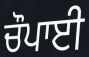
ਚੌਪਾਈ